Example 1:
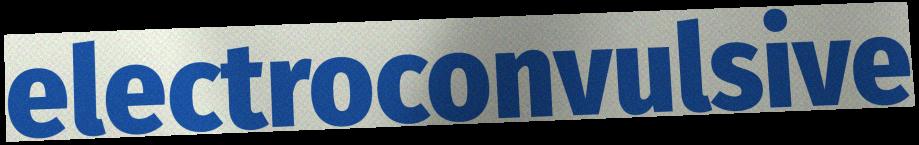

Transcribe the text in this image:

electroconvulsive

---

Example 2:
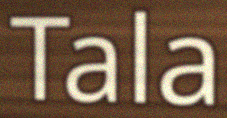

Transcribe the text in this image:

Tala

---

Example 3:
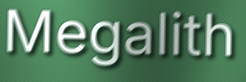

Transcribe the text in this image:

Megalith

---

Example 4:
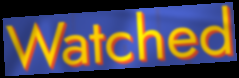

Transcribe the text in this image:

Watched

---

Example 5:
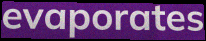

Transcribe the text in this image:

evaporates